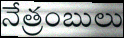
నేత్రంబులు